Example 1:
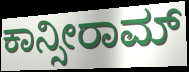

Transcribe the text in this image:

ಕಾನ್ಸೀರಾಮ್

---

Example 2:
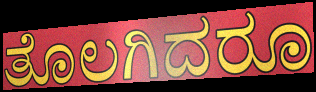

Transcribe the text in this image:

ತೊಲಗಿದರೂ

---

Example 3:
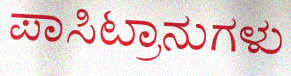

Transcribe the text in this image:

ಪಾಸಿಟ್ರಾನುಗಳು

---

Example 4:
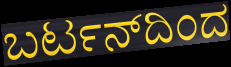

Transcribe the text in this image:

ಬರ್ಟನ್‌ದಿಂದ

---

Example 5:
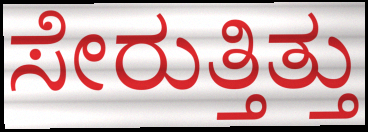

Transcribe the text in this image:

ಸೇರುತ್ತಿತ್ತು